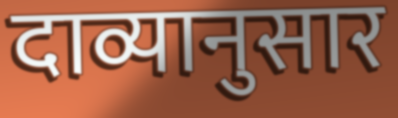
दाव्यानुसार